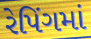
રેપિંગમાં